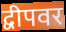
द्वीपवर